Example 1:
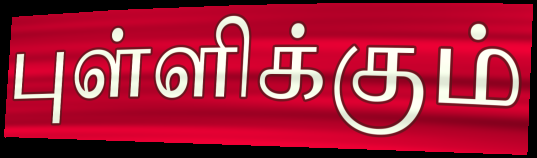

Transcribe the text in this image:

புள்ளிக்கும்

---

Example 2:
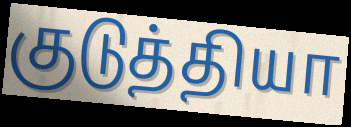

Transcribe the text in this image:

குடுத்தியா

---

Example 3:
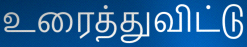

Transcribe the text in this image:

உரைத்துவிட்டு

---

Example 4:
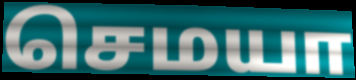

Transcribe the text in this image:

செமயா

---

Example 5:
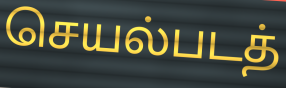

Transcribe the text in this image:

செயல்படத்